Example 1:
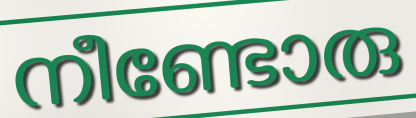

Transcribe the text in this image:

നീണ്ടോരു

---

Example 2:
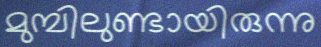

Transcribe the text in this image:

മുമ്പിലുണ്ടായിരുന്നു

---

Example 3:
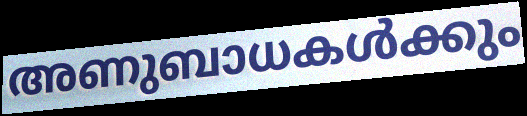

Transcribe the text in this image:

അണുബാധകൾക്കും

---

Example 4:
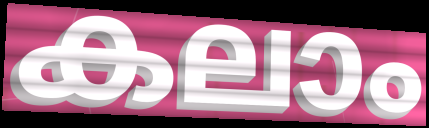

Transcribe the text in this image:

കലാം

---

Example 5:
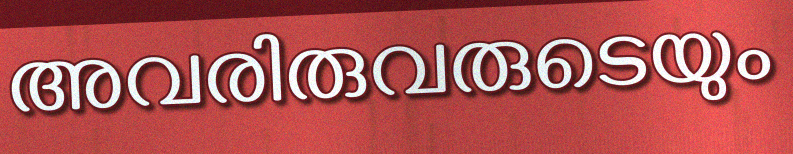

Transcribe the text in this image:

അവരിരുവരുടെയും